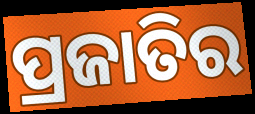
ପ୍ରଜାତିର